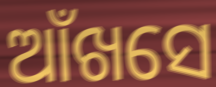
ଆଁଖସେ